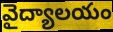
వైద్యాలయం